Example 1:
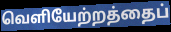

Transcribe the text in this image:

வெளியேற்றத்தைப்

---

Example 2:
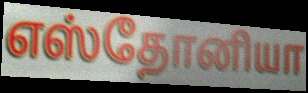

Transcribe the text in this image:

எஸ்தோனியா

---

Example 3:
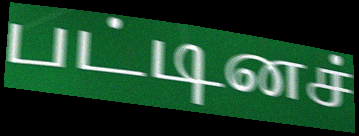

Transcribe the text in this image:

பட்டினச்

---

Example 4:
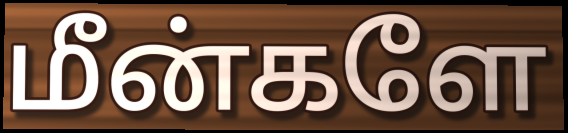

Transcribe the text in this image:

மீன்களே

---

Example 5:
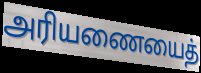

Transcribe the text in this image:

அரியணையைத்